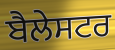
ਬੈਲੇਸਟਰ